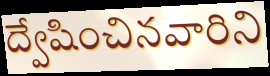
ద్వేషించినవారిని